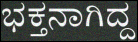
ಭಕ್ತನಾಗಿದ್ದ